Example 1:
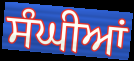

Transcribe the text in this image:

ਸੰਘੀਆਂ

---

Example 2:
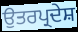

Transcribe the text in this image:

ਉਤਰਪ੍ਰਦੇਸ਼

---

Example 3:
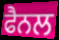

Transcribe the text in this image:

ਫੈਨਲ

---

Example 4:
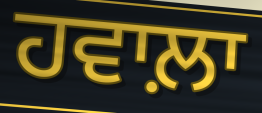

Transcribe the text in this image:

ਹਵਾਲ਼ਾ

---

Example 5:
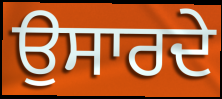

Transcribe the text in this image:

ਉਸਾਰਦੇ